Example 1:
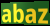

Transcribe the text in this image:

abaz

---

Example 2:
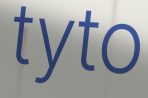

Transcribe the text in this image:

tyto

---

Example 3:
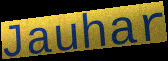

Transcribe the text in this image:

Jauhar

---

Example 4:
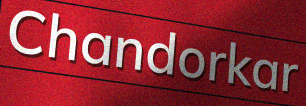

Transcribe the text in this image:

Chandorkar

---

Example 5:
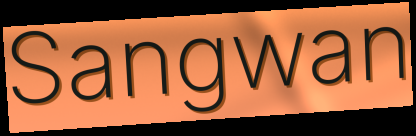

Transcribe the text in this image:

Sangwan